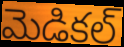
మెడికల్